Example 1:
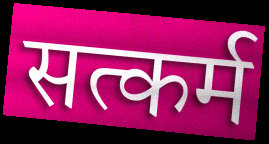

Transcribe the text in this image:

सत्कर्म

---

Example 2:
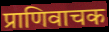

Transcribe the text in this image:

प्राणिवाचक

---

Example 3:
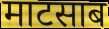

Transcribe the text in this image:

माटसाब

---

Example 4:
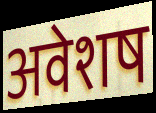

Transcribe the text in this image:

अवेशष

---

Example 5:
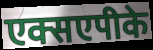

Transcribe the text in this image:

एक्सएपीके